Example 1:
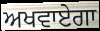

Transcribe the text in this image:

ਅਖਵਾਏਗਾ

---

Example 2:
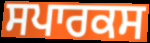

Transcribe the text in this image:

ਸਪਾਰਕਸ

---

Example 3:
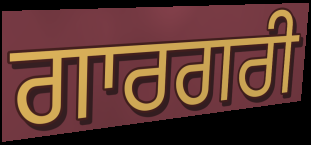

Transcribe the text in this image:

ਗਾਰਗਰੀ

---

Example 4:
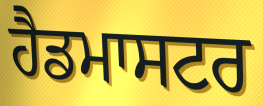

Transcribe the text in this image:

ਹੈਡਮਾਸਟਰ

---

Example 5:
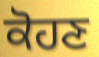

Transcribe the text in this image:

ਕੋਹਣ